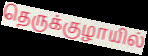
தெருக்குழாயில்